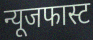
न्यूजफास्ट